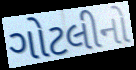
ગોટલીનો